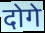
दोगे